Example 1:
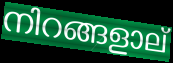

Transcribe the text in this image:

നിറങ്ങളാല്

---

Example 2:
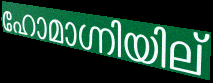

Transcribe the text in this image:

ഹോമാഗ്നിയില്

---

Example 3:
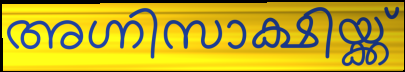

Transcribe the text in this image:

അഗ്നിസാക്ഷിയ്ക്ക്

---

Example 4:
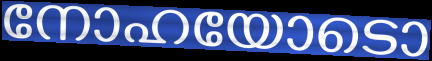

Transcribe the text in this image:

നോഹയോടൊ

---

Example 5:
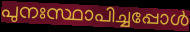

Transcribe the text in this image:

പുനഃസ്ഥാപിച്ചപ്പോൾ